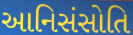
આનિસંસોતિ